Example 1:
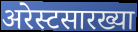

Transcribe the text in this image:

अरेस्टसारख्या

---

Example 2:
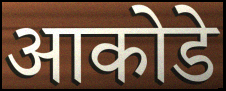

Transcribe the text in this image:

आकोडे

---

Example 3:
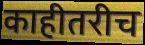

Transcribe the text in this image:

काहीतरीच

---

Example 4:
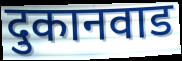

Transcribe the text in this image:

दुकानवाड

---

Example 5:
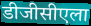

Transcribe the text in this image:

डीजीसीएला